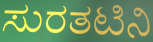
ಸುರತಟಿನಿ